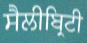
ਸੈਲੀਬ੍ਰਿਟੀ